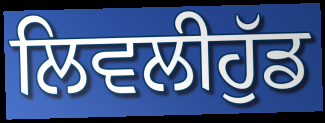
ਲਿਵਲੀਹੁੱਡ